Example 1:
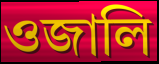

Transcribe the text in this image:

ওজালি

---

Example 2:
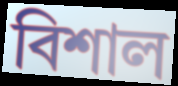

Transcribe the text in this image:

বিশাল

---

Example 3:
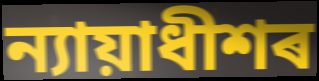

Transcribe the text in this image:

ন্যায়াধীশৰ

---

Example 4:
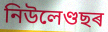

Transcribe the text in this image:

নিউলেণ্ডছৰ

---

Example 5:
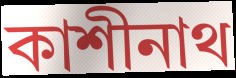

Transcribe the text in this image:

কাশীনাথ